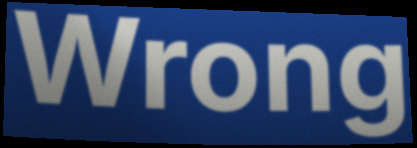
Wrong